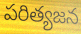
పరిత్యజన